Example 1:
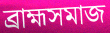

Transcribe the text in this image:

ব্রাহ্মসমাজ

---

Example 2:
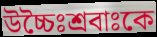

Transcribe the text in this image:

উচ্চৈঃশ্রবাঃকে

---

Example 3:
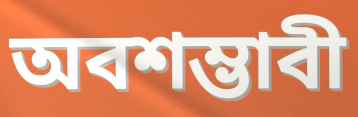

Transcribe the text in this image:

অবশম্ভাবী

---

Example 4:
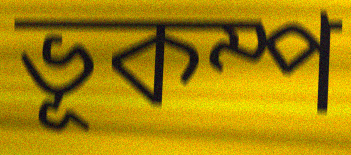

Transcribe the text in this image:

ভূকম্প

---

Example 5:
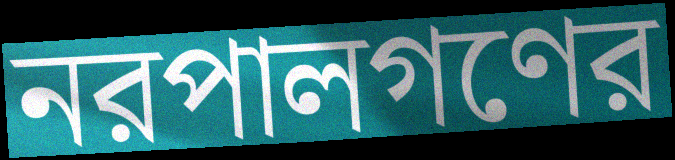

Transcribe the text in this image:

নরপালগণের